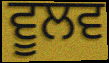
ਵੂਲਵ